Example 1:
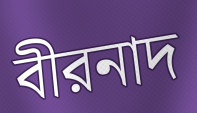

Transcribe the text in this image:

বীরনাদ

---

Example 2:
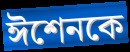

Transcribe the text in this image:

ঈশেনকে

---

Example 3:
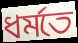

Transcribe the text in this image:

ধর্মতে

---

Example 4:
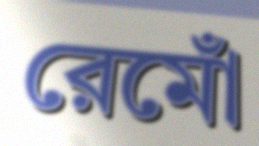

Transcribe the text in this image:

রেমোঁ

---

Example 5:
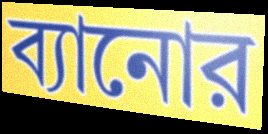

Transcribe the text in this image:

ব্যানোর